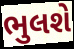
ભુલશે